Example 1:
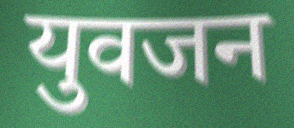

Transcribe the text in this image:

युवजन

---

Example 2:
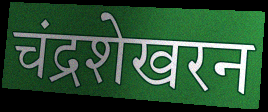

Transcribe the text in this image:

चंद्रशेखरन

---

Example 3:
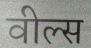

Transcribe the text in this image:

वील्स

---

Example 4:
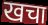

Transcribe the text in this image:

खचा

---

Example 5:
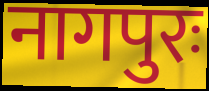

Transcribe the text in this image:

नागपुरः